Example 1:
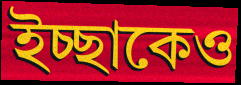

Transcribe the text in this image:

ইচ্ছাকেও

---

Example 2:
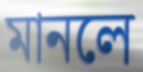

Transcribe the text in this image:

মানলে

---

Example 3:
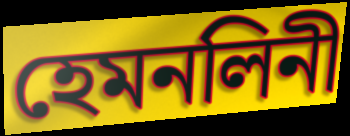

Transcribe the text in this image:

হেমনলিনী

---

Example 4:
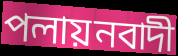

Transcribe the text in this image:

পলায়নবাদী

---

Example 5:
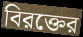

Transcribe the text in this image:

বিরক্তের